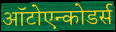
ऑटोएन्कोडर्स